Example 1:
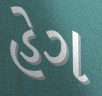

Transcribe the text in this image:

હેગ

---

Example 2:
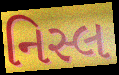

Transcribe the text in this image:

નિસ્લ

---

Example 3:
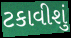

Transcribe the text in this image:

ટકાવીશું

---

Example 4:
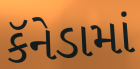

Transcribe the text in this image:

કૅનેડામાં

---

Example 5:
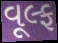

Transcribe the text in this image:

વૂલ્ફ